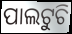
ପାଲଟୁଚି